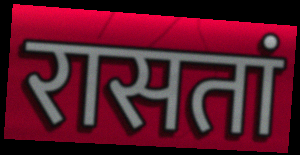
रासतां